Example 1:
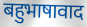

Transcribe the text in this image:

बहुभाषावाद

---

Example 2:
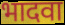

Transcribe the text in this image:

भादवा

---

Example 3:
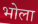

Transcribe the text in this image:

भोला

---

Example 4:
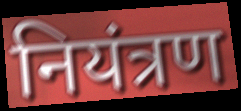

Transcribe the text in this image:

नियंत्रण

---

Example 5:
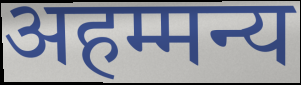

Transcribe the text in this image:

अहम्मन्य